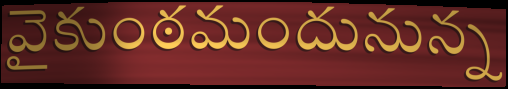
వైకుంఠమందునున్న